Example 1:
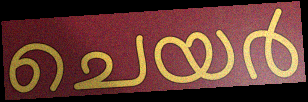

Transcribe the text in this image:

ചെയർ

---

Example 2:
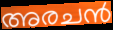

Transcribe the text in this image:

അരചൻ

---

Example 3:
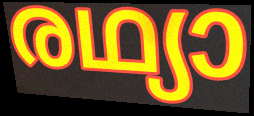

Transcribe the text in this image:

രഥ്യാ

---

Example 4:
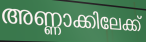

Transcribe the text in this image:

അണ്ണാക്കിലേക്ക്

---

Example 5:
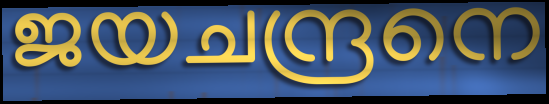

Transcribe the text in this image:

ജയചന്ദ്രനെ